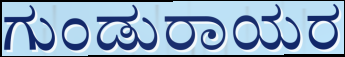
ಗುಂಡುರಾಯರ